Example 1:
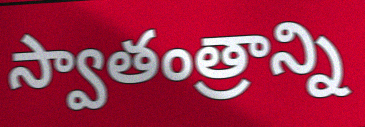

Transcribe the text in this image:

స్వాతంత్రాన్ని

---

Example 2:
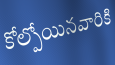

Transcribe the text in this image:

కోల్పోయినవారికి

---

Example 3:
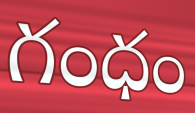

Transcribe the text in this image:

గంధం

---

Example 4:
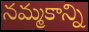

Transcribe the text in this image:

నమ్మకాన్ని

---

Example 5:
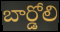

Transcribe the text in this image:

బార్డోలి